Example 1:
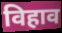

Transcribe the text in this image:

विहाव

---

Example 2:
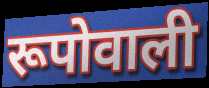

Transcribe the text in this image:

रूपोवाली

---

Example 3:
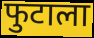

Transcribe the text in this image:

फुटाला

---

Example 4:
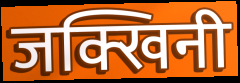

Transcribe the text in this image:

जक्खिनी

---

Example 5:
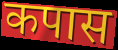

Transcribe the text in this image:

कपास